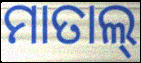
ମାତାଲ୍